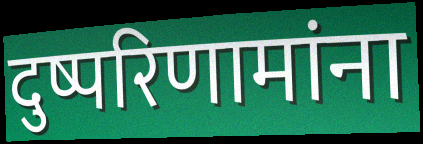
दुष्परिणामांना